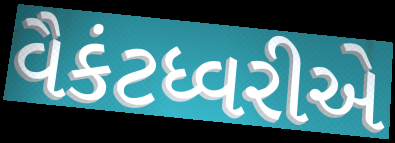
વૈકંટધ્વરીએ